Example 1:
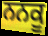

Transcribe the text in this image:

ਨਨਕੂ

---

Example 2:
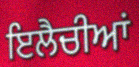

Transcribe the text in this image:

ਇਲੈਚੀਆਂ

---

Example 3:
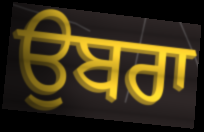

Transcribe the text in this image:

ਉਬਰਾ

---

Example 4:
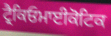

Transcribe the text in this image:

ਟ੍ਰੈਕਿਓਮਾਈਕੋਟਿਕ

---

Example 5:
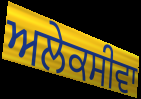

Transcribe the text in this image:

ਅਲੇਕਸੀਵਾ